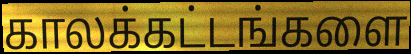
காலக்கட்டங்களை